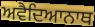
ਅਵੈਦਿਆਨਾਥ